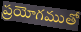
ప్రయోగముతో